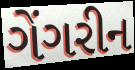
ગેંગરીન